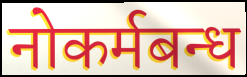
नोकर्मबन्ध